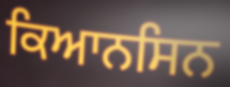
ਕਿਆਨਸਿਨ